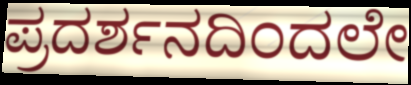
ಪ್ರದರ್ಶನದಿಂದಲೇ